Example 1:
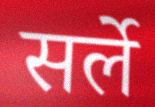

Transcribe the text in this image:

सर्ले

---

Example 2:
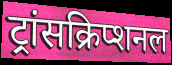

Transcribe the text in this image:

ट्रांसक्रिप्शनल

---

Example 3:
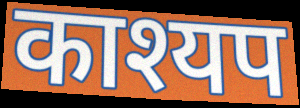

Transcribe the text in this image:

काश्यप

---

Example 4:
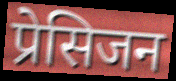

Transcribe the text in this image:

प्रेसिजन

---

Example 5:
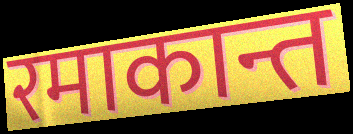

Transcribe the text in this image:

रमाकान्त